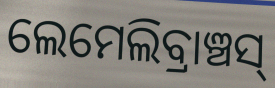
ଲେମେଲିବ୍ରାଞ୍ଚସ୍